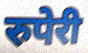
रुपेरी